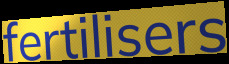
fertilisers